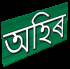
অহিৰ